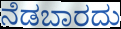
ನೆಡಬಾರದು